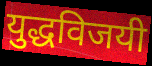
युद्धविजयी